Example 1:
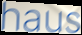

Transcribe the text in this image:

haus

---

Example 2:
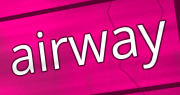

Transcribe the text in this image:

airway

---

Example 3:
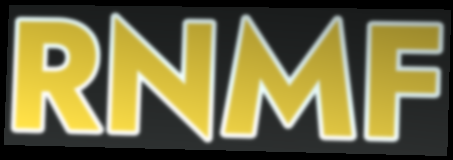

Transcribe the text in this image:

RNMF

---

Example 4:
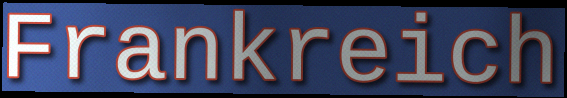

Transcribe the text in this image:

Frankreich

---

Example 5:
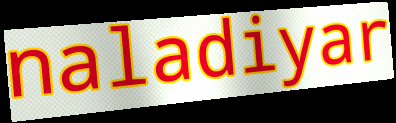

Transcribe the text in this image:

naladiyar